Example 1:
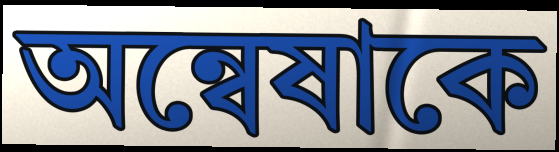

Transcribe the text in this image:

অন্বেষাকে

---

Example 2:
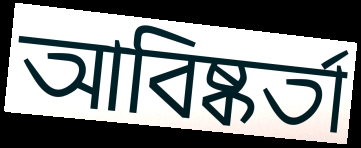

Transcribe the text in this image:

আবিষ্কর্তা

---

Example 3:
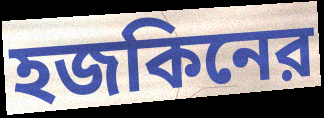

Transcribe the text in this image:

হজকিনের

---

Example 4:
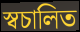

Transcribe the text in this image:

স্বচালিত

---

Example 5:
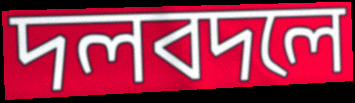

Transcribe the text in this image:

দলবদলে